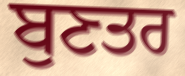
ਬੁਣਤਰ